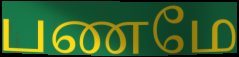
பணமே